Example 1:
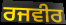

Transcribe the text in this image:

ਰਜਵੀਰ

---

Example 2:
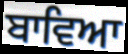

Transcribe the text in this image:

ਬਾਵਿਆ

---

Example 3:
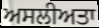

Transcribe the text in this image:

ਅਸਲੀਅਤਾ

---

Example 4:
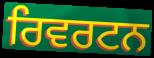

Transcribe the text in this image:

ਰਿਵਰਟਨ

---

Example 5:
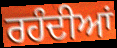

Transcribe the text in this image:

ਰਹੰਦੀਆਂ